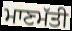
ਮਾਣਮੱਤੀ